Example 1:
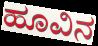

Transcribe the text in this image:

ಹೂವಿನ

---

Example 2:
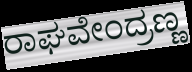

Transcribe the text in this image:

ರಾಘವೇಂದ್ರಣ್ಣ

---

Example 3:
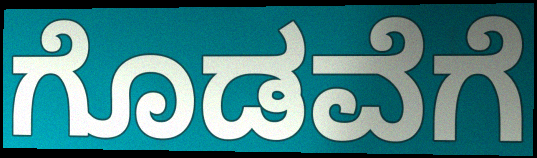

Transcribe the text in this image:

ಗೊಡವೆಗೆ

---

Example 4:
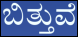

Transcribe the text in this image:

ಬಿತ್ತುವೆ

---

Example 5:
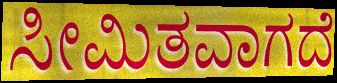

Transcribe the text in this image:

ಸೀಮಿತವಾಗದೆ